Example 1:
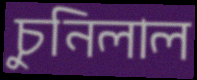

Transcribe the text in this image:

চুনিলাল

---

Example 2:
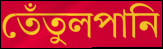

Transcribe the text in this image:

তেঁতুলপানি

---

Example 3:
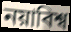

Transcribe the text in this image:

নয়াবিশ্ব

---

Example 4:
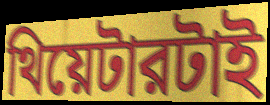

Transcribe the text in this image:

থিয়েটারটাই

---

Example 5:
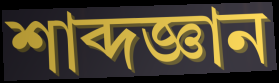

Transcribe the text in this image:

শাব্দজ্ঞান